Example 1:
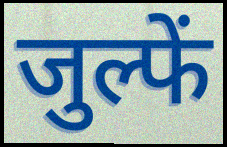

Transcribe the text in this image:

जुल्फें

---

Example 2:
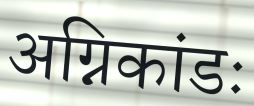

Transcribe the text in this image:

अग्निकांडः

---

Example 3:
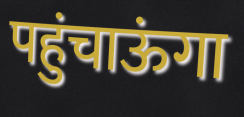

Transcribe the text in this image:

पहुंचाऊंगा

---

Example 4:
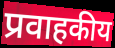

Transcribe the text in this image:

प्रवाहकीय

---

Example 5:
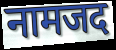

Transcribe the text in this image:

नामजद